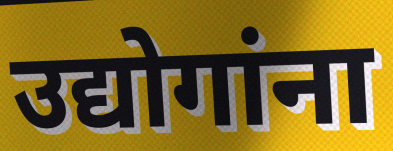
उद्योगांना